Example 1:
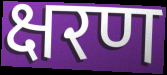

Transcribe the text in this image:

क्षरण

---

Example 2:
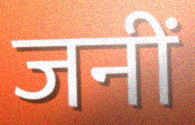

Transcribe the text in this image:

जनीं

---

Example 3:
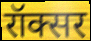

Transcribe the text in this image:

रॉक्सर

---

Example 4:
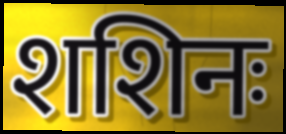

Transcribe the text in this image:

शशिनः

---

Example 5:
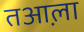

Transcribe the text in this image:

तआ़ला